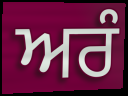
ਅਰੰ